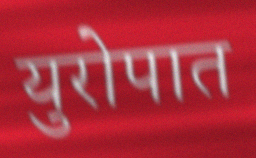
युरोपात